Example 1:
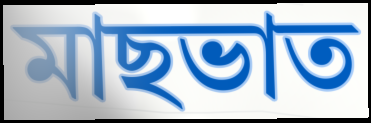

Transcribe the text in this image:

মাছভাত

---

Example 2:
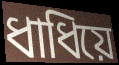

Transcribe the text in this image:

ধাধিয়ে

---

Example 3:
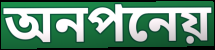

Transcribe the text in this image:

অনপনেয়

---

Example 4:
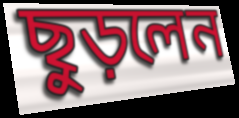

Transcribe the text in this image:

ছুড়লেন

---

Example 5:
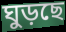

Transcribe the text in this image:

ঘুড়ছে